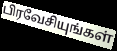
பிரவேசியுங்கள்